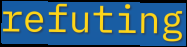
refuting